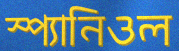
স্প্যানিওল